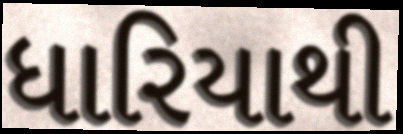
ધારિયાથી